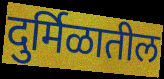
दुर्मिळातील